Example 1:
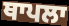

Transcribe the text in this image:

ਥਾਪਲਾ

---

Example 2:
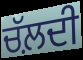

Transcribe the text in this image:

ਚੱਲ਼ਦੀ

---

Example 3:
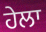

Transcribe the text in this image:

ਹੇਲਾ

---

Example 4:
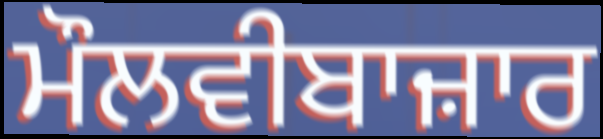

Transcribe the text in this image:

ਮੌਲਵੀਬਾਜ਼ਾਰ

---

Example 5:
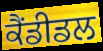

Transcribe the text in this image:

ਕੈਂਡੀਡਲ